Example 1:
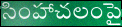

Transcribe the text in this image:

సింహాచలంపై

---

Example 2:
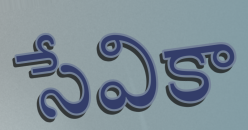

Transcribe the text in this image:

సేవికా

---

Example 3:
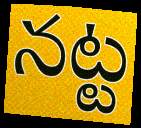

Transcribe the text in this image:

నట్ట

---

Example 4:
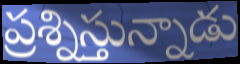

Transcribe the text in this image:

ప్రశ్నిస్తున్నాడు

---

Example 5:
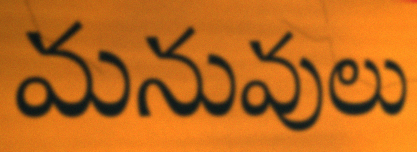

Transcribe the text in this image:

మనువులు